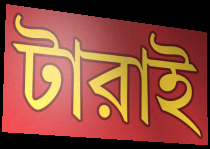
টারাই